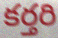
కర్తరి